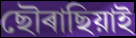
ছৌৰাছিয়াই